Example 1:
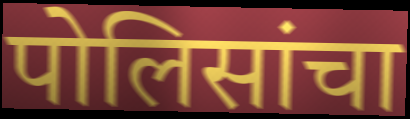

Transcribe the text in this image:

पोलिसांचा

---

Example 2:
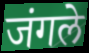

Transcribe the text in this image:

जंगले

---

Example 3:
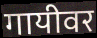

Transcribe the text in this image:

गायीवर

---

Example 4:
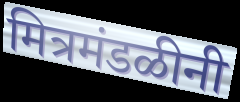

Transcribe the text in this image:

मित्रमंडळीनी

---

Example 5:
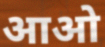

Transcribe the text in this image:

आओ